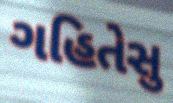
ગહિતેસુ